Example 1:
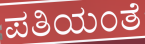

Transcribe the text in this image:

ಪತಿಯಂತೆ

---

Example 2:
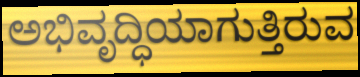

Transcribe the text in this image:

ಅಭಿವೃದ್ಧಿಯಾಗುತ್ತಿರುವ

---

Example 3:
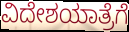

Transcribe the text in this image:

ವಿದೇಶಯಾತ್ರೆಗೆ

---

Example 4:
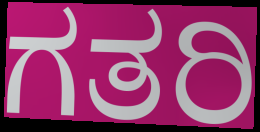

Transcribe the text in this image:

ಗತರಿ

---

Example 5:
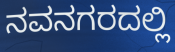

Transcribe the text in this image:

ನವನಗರದಲ್ಲಿ